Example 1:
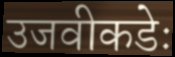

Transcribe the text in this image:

उजवीकडेः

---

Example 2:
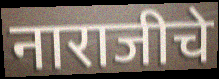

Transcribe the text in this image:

नाराजीचे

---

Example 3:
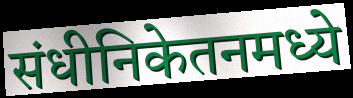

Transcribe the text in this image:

संधीनिकेतनमध्ये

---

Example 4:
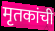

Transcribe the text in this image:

मृतकांची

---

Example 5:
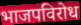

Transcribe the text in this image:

भाजपविरोध